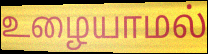
உழையாமல்